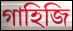
গাহিজি